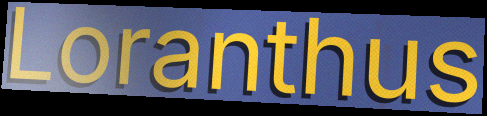
Loranthus